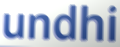
undhi